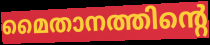
മൈതാനത്തിന്റെ